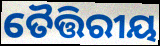
ତୈତ୍ତିରୀୟ